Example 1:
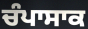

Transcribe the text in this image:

ਚੰਪਾਸਾਕ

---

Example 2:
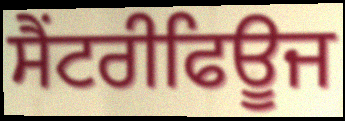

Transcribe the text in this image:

ਸੈਂਟਰੀਫਿਊਜ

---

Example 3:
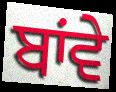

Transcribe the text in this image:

ਬਾਂਵੇ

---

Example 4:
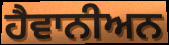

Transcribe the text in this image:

ਹੈਵਾਨੀਅਨ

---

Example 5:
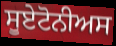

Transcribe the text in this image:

ਸੂਏਟੋਨੀਅਸ